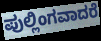
ಪುಲ್ಲಿಂಗವಾದರೆ